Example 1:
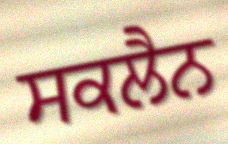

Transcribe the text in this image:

ਸਕਲੈਨ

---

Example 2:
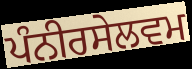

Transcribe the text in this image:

ਪੰਨੀਰਸੇਲਵਮ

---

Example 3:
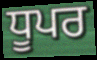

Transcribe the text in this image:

ਧੂਪਰ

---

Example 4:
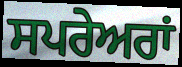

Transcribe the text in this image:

ਸਪਰੇਅਰਾਂ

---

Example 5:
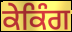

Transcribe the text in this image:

ਕੇਕਿੰਗ